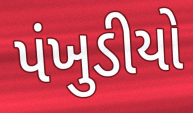
પંખુડીયો